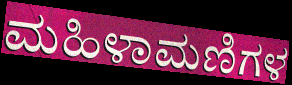
ಮಹಿಳಾಮಣಿಗಳ